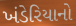
ખંડેરિયાનો